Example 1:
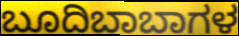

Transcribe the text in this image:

ಬೂದಿಬಾಬಾಗಳ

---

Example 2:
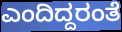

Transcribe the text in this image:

ಎಂದಿದ್ದರಂತೆ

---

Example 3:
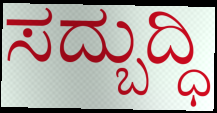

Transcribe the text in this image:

ಸದ್ಬುದ್ಧಿ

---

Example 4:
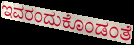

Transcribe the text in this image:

ಇವರಂದುಕೊಂಡಂತೆ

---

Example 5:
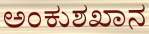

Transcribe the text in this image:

ಅಂಕುಶಖಾನ